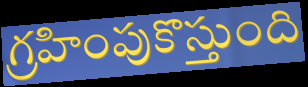
గ్రహింపుకొస్తుంది